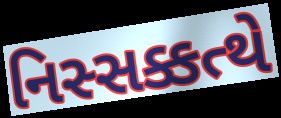
નિસ્સક્કત્થે